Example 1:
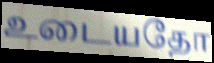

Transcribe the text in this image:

உடையதோ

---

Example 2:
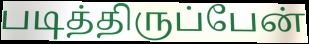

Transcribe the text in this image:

படித்திருப்பேன்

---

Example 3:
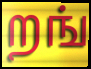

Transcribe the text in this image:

றங்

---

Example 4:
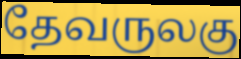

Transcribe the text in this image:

தேவருலகு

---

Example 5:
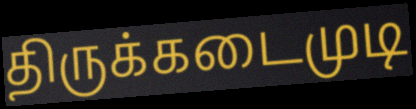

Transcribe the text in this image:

திருக்கடைமுடி